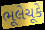
ભૂલેચૂકે